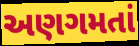
અણગમતાં